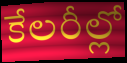
కేలరీల్లో